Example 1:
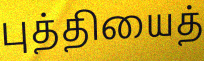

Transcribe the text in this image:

புத்தியைத்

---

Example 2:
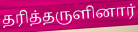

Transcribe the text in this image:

தரித்தருளினார்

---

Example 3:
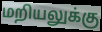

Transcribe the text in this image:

மறியலுக்கு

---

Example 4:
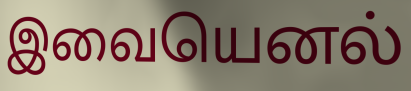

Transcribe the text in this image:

இவையெனல்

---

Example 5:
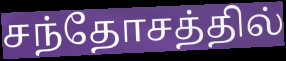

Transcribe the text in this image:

சந்தோசத்தில்